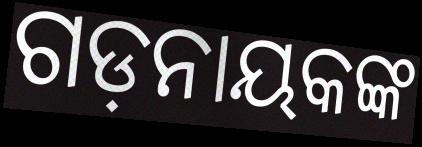
ଗଡ଼ନାୟକଙ୍କ